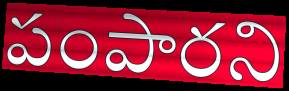
పంపారని